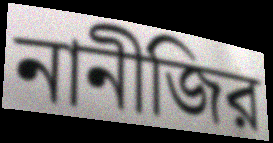
নানীজির